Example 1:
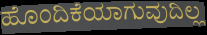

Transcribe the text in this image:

ಹೊಂದಿಕೆಯಾಗುವುದಿಲ್ಲ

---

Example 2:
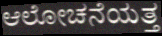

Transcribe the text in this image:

ಆಲೋಚನೆಯತ್ತ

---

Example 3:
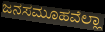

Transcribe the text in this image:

ಜನಸಮೂಹವೆಲ್ಲಾ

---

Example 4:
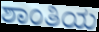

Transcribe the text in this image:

ಶಾಂತಿಯ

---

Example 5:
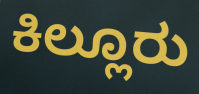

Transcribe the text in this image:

ಕಿಲ್ಲೂರು